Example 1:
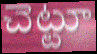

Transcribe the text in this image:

చెట్టూ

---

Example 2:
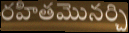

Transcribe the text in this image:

రహితమొనర్చి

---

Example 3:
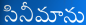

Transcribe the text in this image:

సినీమాను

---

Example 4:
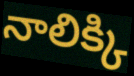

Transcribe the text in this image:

నాలిక్కి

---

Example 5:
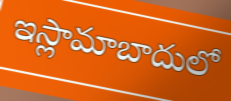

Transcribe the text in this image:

ఇస్లామాబాదులో